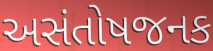
અસંતોષજનક